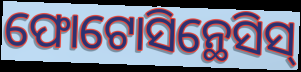
ଫୋଟୋସିନ୍ଥେସିସ୍